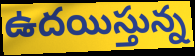
ఉదయిస్తున్న